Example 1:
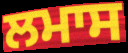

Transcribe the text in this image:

ਲਮਾਸ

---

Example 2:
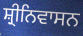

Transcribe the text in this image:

ਸ਼੍ਰੀਨਿਵਾਸਨ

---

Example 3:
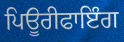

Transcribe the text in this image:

ਪਿਊਰੀਫਾਇੰਗ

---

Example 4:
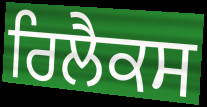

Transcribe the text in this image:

ਰਿਲੈਕਸ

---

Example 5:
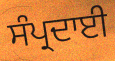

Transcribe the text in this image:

ਸੰਪ੍ਰਦਾਈ